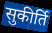
सुकीर्ति